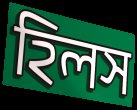
হিলস